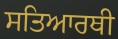
ਸਤਿਆਰਥੀ